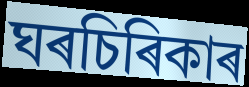
ঘৰচিৰিকাৰ